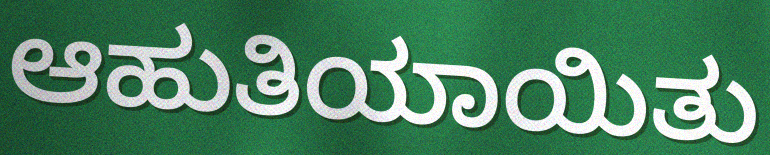
ಆಹುತಿಯಾಯಿತು